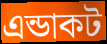
এন্ডাকট